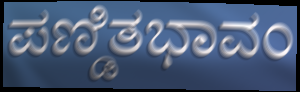
ಪಣ್ಡಿತಭಾವಂ